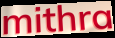
mithra